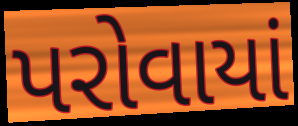
પરોવાયાં